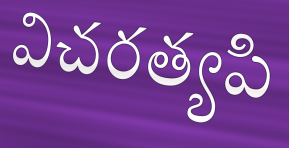
విచరత్యపి